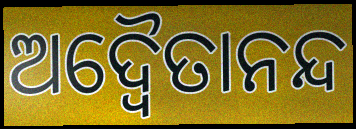
ଅଦ୍ଵୈତାନନ୍ଦ